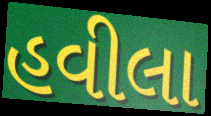
હવીલા